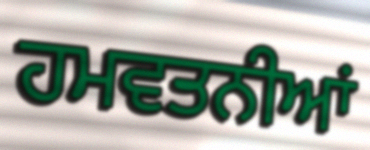
ਹਮਵਤਨੀਆਂ